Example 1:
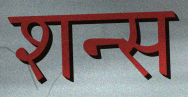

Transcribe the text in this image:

शन्स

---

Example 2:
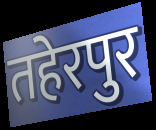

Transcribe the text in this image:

तहेरपुर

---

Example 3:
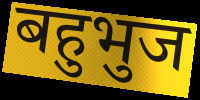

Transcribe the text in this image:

बहुभुज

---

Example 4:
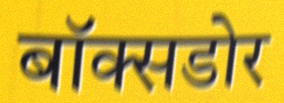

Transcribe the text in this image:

बॉक्सडोर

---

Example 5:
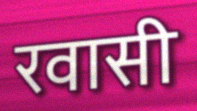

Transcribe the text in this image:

रवासी